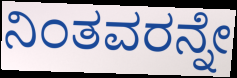
ನಿಂತವರನ್ನೇ